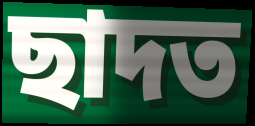
ছাদত